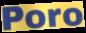
Poro